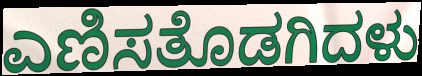
ಎಣಿಸತೊಡಗಿದಳು